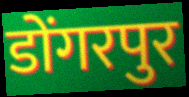
डोंगरपुर